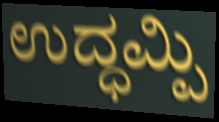
ಉದ್ಧಮ್ಪಿ